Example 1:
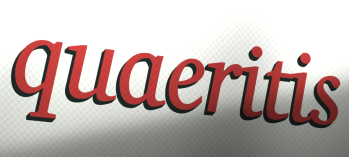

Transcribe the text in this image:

quaeritis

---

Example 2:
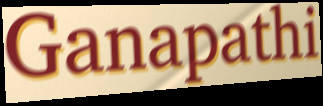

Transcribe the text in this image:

Ganapathi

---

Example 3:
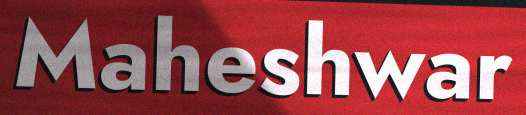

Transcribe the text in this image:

Maheshwar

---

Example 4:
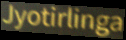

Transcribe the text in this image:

Jyotirlinga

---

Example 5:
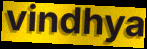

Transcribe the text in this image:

vindhya